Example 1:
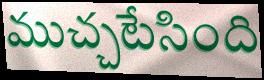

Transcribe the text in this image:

ముచ్చటేసింది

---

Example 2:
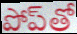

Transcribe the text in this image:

పోప్‌తో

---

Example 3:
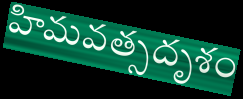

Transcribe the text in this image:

హిమవత్సదృశం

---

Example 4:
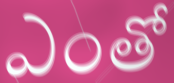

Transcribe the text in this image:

ఎంతో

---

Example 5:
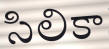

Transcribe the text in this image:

సిలికా